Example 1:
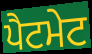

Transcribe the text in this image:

ਪੈਟਮੇਟ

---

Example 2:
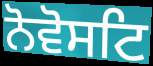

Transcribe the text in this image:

ਨੋਵੋਸਟਿ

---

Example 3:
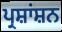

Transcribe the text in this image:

ਪ੍ਰਸ਼ਾਂਸ਼ਨ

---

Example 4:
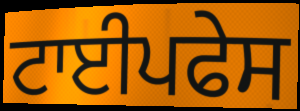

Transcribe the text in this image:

ਟਾਈਪਫੇਸ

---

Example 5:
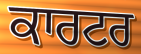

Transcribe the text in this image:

ਕਾਰਟਰ